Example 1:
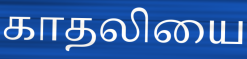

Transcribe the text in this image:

காதலியை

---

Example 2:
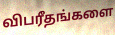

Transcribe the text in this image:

விபரீதங்களை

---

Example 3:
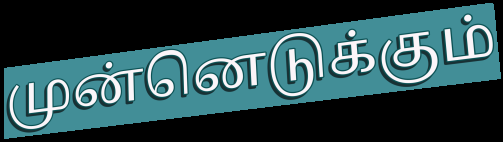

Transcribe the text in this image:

முன்னெடுக்கும்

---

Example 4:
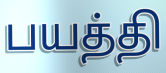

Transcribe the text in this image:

பயத்தி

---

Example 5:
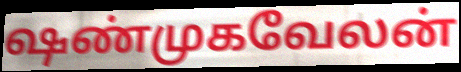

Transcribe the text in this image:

ஷண்முகவேலன்